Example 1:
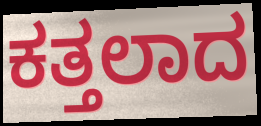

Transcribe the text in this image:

ಕತ್ತಲಾದ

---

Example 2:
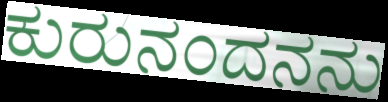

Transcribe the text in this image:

ಕುರುನಂದನನು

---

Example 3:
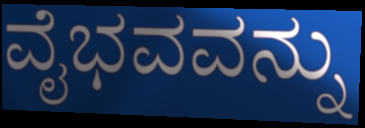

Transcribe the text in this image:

ವೈಭವವನ್ನು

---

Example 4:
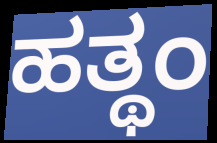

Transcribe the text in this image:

ಹತ್ಥಂ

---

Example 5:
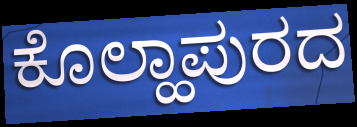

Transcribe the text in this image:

ಕೊಲ್ಹಾಪುರದ